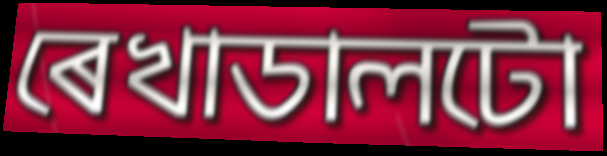
ৰেখাডালটো